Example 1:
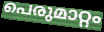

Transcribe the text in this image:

പെരുമാറ്റം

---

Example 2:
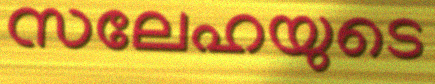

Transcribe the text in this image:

സലേഹയുടെ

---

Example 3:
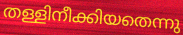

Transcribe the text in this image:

തള്ളിനീക്കിയതെന്നു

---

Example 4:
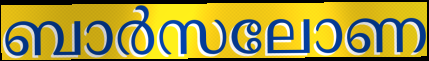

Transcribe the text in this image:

ബാർസലോണ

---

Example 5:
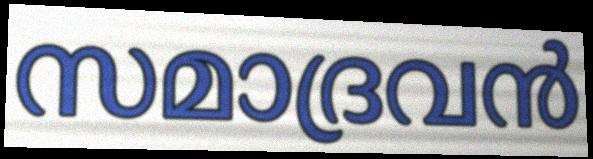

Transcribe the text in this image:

സമാദ്രവൻ